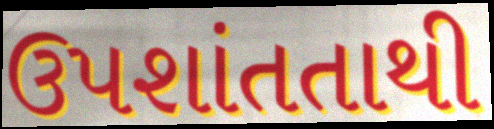
ઉપશાંતતાથી